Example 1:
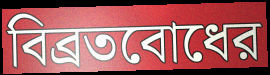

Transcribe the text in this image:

বিব্রতবোধের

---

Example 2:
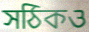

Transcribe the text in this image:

সঠিকও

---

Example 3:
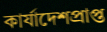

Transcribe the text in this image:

কার্যাদেশপ্রাপ্ত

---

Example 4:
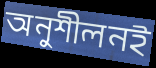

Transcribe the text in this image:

অনুশীলনই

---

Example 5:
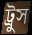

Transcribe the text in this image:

ট্রুস